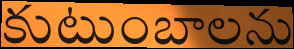
కుటుంబాలను